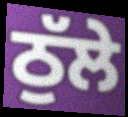
ਠੁੱਲੇ